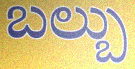
బల్బు